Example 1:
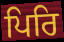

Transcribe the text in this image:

ਪਿਰਿ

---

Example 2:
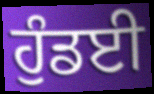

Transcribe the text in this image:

ਹੁੰਡਈ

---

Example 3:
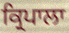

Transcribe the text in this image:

ਕ੍ਰਿਪਾਲਾ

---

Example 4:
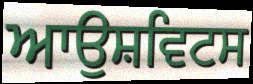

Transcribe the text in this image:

ਆਉਸ਼ਵਿਟਸ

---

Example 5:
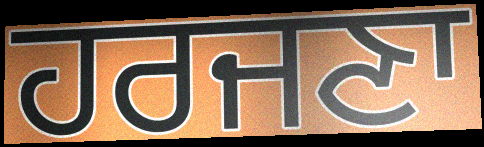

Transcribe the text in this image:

ਹਰਜਣਾ